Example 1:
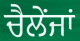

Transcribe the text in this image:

ਚੈਲੇਂਜਾਂ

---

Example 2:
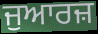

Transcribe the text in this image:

ਜੁਆਰਜ਼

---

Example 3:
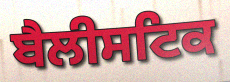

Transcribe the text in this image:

ਬੈਲੀਸਟਿਕ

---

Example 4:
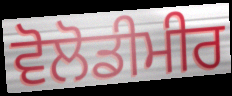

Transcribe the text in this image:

ਵੋਲੋਡੀਮੀਰ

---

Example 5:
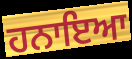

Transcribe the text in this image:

ਹਨਾਇਆ